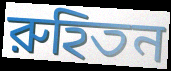
রুহিতন